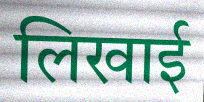
लिखाई